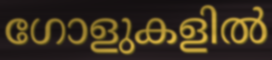
ഗോളുകളിൽ